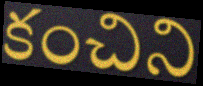
కంచిని